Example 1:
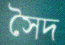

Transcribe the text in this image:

সৈদ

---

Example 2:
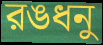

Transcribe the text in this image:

রঙধনু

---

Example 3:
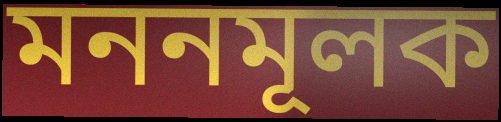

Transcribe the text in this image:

মননমূলক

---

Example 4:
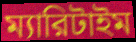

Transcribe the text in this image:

ম্যারিটাইম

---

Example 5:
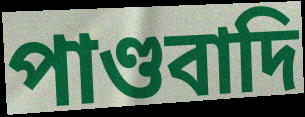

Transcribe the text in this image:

পাণ্ডবাদি